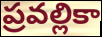
ప్రవల్లికా